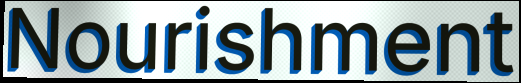
Nourishment